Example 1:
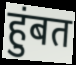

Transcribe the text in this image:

हुंबत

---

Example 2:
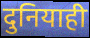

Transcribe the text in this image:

दुनियाही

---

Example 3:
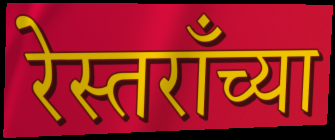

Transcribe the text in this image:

रेस्तराँच्या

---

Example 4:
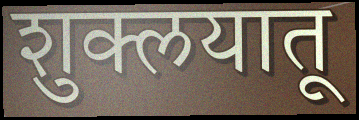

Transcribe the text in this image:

शुक्लयातू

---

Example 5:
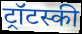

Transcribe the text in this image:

ट्रॉटस्की